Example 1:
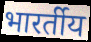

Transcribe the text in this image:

भारर्तीय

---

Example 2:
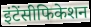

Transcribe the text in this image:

इंटेंसीफिकेशन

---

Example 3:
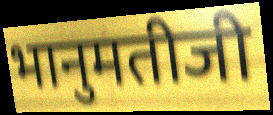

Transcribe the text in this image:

भानुमतीजी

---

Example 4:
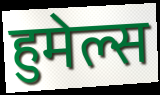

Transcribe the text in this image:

हुमेल्स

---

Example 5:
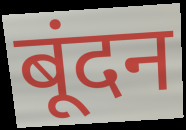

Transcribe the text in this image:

बूंदन